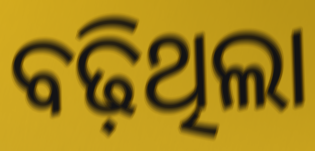
ବଢ଼ିଥିଲା